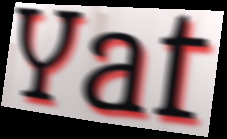
Yat